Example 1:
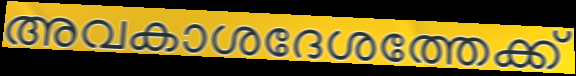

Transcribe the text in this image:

അവകാശദേശത്തേക്ക്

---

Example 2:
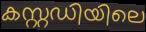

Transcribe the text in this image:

കസ്റ്റഡിയിലെ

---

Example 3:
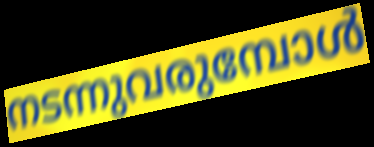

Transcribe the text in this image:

നടന്നുവരുമ്പോൾ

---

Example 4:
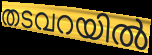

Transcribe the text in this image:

തടവറയിൽ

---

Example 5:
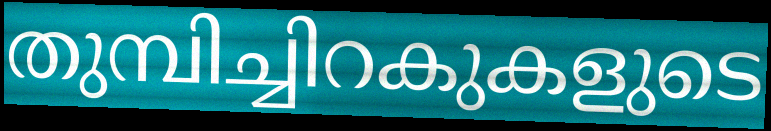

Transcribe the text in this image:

തുമ്പിച്ചിറകുകളുടെ